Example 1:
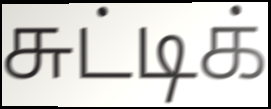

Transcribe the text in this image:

சுட்டிக்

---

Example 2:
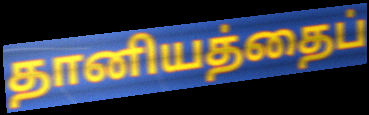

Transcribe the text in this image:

தானியத்தைப்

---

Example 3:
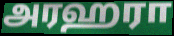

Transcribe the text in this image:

அரஹரா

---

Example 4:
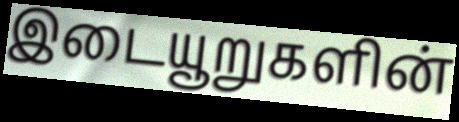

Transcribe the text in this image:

இடையூறுகளின்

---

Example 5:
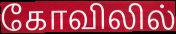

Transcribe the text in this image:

கோவிலில்